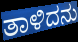
ತಾಳಿದನು